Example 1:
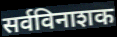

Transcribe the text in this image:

सर्वविनाशक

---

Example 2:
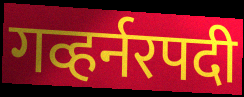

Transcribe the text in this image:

गव्हर्नरपदी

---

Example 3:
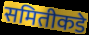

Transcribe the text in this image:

समितीकडे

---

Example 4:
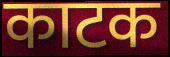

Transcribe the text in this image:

काटक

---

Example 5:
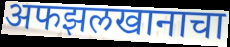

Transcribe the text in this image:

अफझलखानाचा